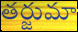
తర్జుమా